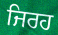
ਜਿਰਹ